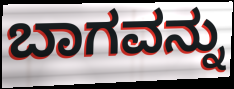
ಬಾಗವನ್ನು